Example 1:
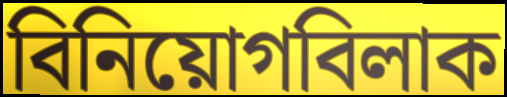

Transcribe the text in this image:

বিনিয়োগবিলাক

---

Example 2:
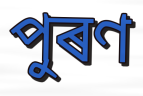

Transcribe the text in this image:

পুৰণ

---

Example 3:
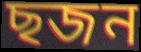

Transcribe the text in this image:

ছজন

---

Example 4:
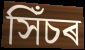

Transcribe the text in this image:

সিঁচৰ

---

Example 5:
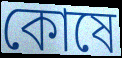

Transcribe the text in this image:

কোষে